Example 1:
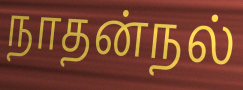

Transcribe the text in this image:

நாதன்நல்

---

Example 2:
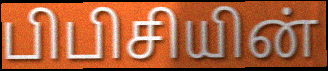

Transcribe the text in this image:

பிபிசியின்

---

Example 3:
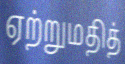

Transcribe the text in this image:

ஏற்றுமதித்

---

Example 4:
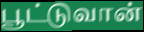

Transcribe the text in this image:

பூட்டுவான்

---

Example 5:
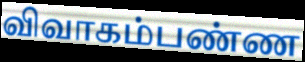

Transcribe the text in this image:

விவாகம்பண்ண